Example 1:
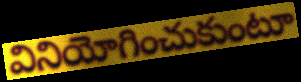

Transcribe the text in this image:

వినియోగించుకుంటూ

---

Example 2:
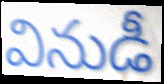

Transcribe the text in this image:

వినుడీ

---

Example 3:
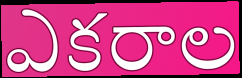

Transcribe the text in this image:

ఎకరాల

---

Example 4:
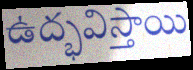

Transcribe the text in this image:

ఉద్భవిస్తాయి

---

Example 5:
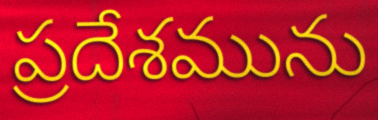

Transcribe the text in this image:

ప్రదేశమును